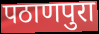
पठाणपुरा